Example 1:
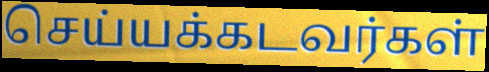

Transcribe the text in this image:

செய்யக்கடவர்கள்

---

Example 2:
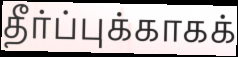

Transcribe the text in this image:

தீர்ப்புக்காகக்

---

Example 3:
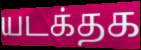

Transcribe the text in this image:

யடக்தக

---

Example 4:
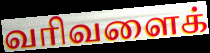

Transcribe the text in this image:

வரிவளைக்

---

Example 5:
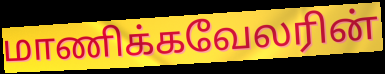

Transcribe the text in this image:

மாணிக்கவேலரின்